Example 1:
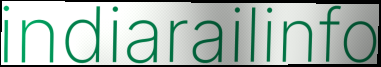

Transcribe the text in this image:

indiarailinfo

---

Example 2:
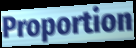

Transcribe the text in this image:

Proportion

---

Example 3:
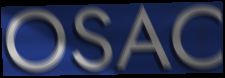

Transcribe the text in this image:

OSAC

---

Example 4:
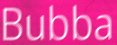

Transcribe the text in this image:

Bubba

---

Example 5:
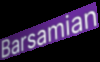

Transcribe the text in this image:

Barsamian